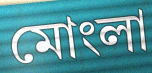
মোংলা